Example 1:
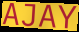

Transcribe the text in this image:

AJAY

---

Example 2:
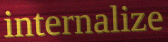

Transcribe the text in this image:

internalize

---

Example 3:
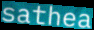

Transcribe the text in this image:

sathea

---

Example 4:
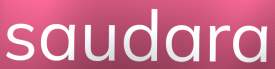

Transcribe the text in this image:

saudara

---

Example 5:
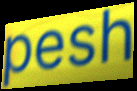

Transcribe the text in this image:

pesh